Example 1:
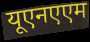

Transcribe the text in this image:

यूएनएएम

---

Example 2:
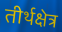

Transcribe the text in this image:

तीर्थक्षेत्र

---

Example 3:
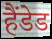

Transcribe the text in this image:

हैंडेड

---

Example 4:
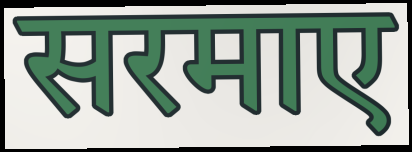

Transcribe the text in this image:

सरमाए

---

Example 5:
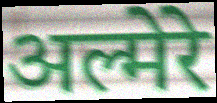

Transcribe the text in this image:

अल्मेरे